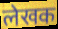
लेखक